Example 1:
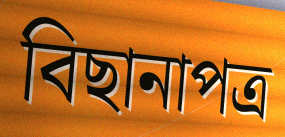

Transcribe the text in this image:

বিছানাপত্র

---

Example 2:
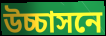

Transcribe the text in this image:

উচ্চাসনে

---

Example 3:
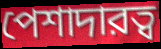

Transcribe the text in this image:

পেশাদারত্ব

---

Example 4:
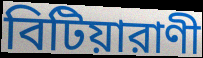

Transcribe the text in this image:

বিটিয়ারাণী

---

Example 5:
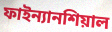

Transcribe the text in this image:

ফাইন্যানশিয়াল